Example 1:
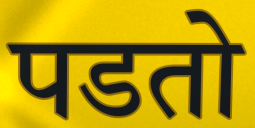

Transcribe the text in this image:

पडतो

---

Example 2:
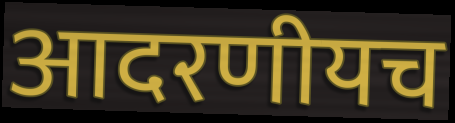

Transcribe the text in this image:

आदरणीयच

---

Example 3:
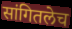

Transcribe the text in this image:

सांगितलेच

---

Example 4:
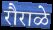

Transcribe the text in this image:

रौराळे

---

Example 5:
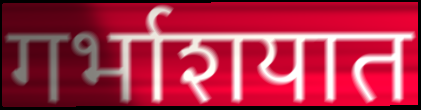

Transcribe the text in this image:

गर्भाशयात